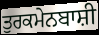
ਤੁਰਕਮੇਨਬਾਸ਼ੀ